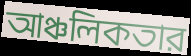
আঞ্চলিকতার